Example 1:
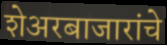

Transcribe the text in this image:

शेअरबाजारांचे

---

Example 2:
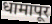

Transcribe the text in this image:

धामापूर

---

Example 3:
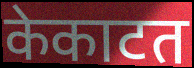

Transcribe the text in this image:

केकाटत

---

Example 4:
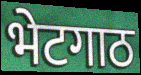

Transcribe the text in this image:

भेटगाठ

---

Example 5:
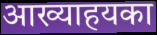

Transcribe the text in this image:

आख्याहयका